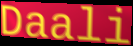
Daali